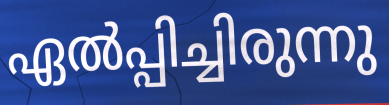
ഏൽപ്പിച്ചിരുന്നു